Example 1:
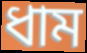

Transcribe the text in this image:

ধাম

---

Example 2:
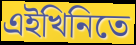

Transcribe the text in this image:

এইখিনিতে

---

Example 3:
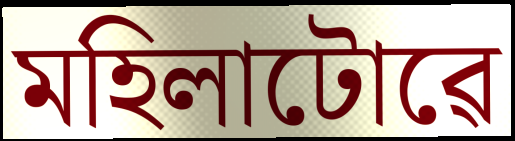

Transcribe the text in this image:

মহিলাটোৱে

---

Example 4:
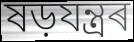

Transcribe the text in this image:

ষড়যন্ত্ৰৰ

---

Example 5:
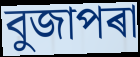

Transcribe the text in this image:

বুজাপৰা